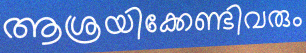
ആശ്രയിക്കേണ്ടിവരും